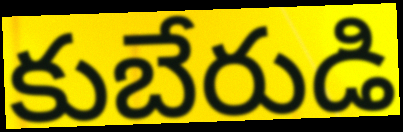
కుబేరుడి